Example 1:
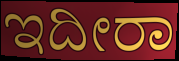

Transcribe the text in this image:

ಇದೀರಾ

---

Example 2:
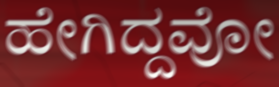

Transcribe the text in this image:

ಹೇಗಿದ್ದವೋ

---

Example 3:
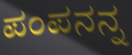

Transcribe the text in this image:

ಪಂಪನನ್ನ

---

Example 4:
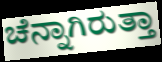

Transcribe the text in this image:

ಚೆನ್ನಾಗಿರುತ್ತಾ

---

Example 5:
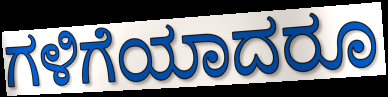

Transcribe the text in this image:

ಗಳಿಗೆಯಾದರೂ